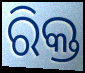
ରିକ୍ତ